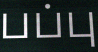
பப்பு